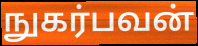
நுகர்பவன்